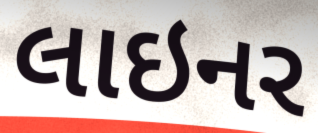
લાઇનર